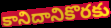
కానిదానికొరకు